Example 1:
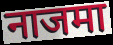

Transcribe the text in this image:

नाजमा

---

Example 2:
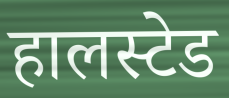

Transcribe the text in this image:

हालस्टेड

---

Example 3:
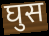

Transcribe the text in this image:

घुस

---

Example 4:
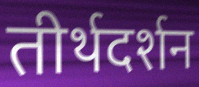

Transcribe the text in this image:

तीर्थदर्शन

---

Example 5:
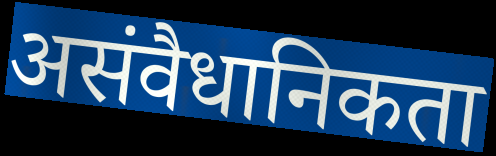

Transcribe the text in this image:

असंवैधानिकता